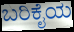
ಬರಿಕೈಯ